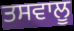
ਤਸਵਾਲੂ